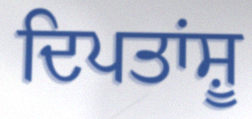
ਦਿਪਤਾਂਸ਼ੂ